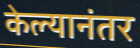
केल्यानंतर